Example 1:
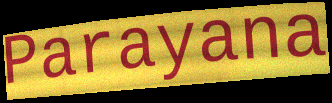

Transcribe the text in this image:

Parayana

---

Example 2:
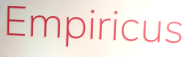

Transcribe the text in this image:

Empiricus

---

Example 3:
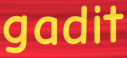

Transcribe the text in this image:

gadit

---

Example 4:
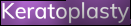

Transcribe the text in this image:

Keratoplasty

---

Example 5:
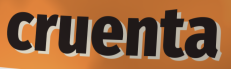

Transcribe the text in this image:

cruenta